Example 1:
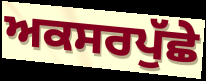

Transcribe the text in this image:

ਅਕਸਰਪੁੱਛੇ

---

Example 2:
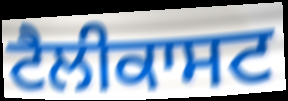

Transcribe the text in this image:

ਟੈਲੀਕਾਸਟ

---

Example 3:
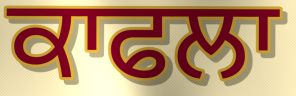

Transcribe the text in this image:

ਕਾਫਲਾ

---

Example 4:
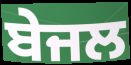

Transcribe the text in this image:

ਬੇਜਲ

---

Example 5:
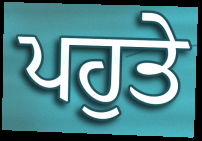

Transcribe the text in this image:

ਪਹੁਤੇ